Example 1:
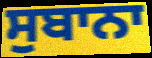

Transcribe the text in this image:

ਸੁਬਾਨਾ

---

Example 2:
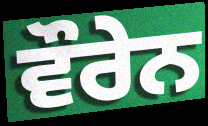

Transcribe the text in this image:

ਵੌਰੇਨ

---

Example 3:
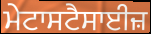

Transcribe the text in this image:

ਮੇਟਾਸਟੈਸਾਈਜ਼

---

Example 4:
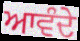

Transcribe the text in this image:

ਆਵੰਦੇ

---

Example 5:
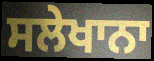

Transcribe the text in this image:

ਸਲੇਖਾਨਾ